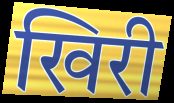
खिरी